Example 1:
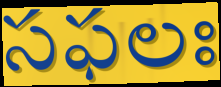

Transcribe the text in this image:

సఫలః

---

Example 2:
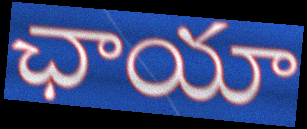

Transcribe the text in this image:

ఛాయా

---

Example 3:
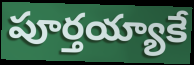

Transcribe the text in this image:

పూర్తయ్యాకే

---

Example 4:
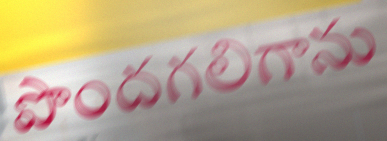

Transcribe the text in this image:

పొందగలిగాను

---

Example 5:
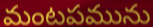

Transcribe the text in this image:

మంటపమును